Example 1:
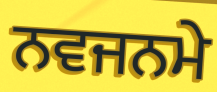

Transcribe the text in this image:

ਨਵਜਨਮੇ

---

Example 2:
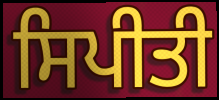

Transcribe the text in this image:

ਸਿਪੀਤੀ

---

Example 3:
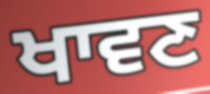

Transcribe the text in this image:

ਖਾਵਣ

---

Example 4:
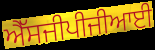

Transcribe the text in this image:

ਐੱਸਜੀਪੀਜੀਆਈ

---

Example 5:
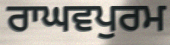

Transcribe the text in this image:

ਰਾਘਵਪੁਰਮ